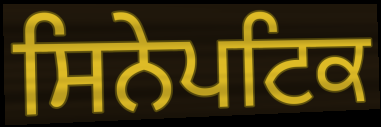
ਸਿਨੇਪਟਿਕ